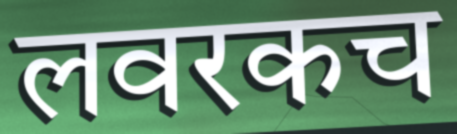
लवरकच